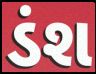
ડંશ